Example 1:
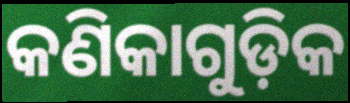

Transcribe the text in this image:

କଣିକାଗୁଡ଼ିକ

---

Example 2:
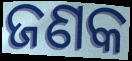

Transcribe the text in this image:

ଜଣକ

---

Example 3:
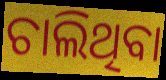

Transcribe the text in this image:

ଚାଲିଥିବା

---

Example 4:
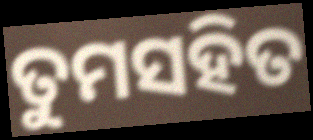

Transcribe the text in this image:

ତୁମସହିତ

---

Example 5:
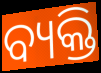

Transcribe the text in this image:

ବ୍ୟକ୍ତି